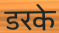
डरके